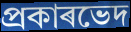
প্ৰকাৰভেদ